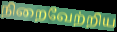
நிறைவேற்றிய